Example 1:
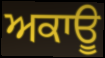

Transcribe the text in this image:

ਅਕਾਊ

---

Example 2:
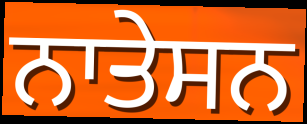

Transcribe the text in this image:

ਨਾਤੇਸਨ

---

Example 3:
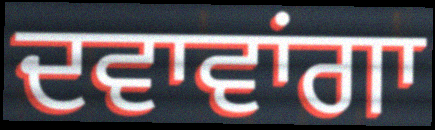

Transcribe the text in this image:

ਦਵਾਵਾਂਗਾ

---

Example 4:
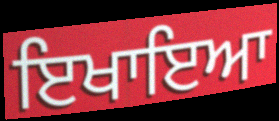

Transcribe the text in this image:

ਇਖਾਇਆ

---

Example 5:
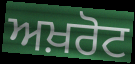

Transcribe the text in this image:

ਅਖ਼ਰੋਟ